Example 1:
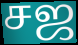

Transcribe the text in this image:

சஜ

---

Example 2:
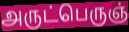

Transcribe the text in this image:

அருட்பெருஞ்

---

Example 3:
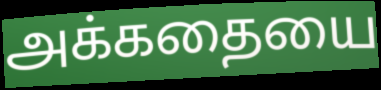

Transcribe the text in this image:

அக்கதையை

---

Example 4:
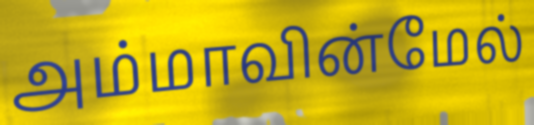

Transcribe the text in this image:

அம்மாவின்மேல்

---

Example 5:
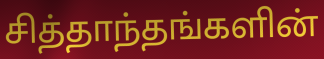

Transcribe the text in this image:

சித்தாந்தங்களின்